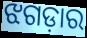
ଝଗଡ଼ାର